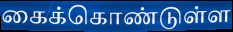
கைக்கொண்டுள்ள